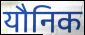
यौनिक